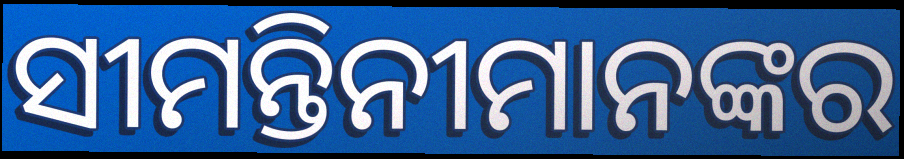
ସୀମନ୍ତିନୀମାନଙ୍କର